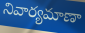
నివార్యమాణా